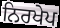
ਨਿਰਖੇਪ